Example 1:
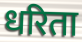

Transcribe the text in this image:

धरिता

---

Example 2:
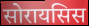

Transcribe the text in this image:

सोरायसिस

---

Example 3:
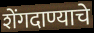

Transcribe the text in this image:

शेंगदाण्याचे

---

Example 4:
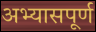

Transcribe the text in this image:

अभ्यासपूर्ण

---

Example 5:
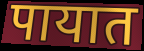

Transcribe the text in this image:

पायात